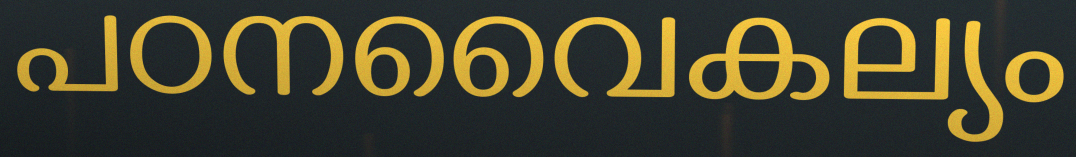
പഠനവൈകല്യം